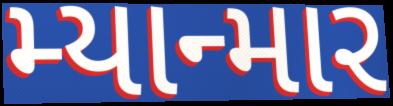
મ્યાન્માર